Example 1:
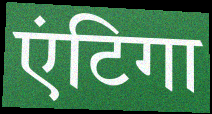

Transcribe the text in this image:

एंटिगा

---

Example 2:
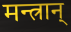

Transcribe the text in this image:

मन्त्रान्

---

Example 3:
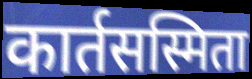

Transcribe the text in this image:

कार्तसस्मिता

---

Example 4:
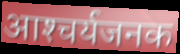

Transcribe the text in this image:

आश्‍चर्यजनक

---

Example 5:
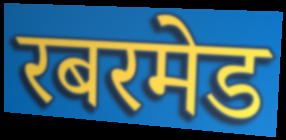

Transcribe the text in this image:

रबरमेड